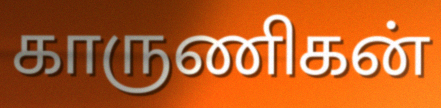
காருணிகன்